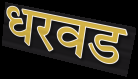
धरवड